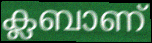
ക്ലബാണ്